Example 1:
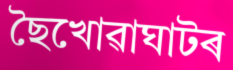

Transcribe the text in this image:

ছৈখোৱাঘাটৰ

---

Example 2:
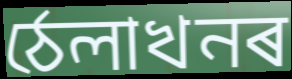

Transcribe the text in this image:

ঠেলাখনৰ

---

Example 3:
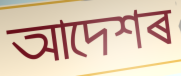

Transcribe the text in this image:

আদেশৰ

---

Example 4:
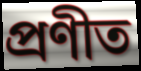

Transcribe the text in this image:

প্ৰণীত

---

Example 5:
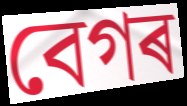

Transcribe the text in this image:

বেগৰ